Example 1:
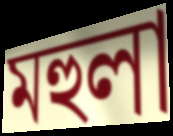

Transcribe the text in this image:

মহুলা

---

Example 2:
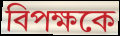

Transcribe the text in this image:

বিপক্ষকে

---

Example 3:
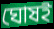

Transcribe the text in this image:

ঘোষই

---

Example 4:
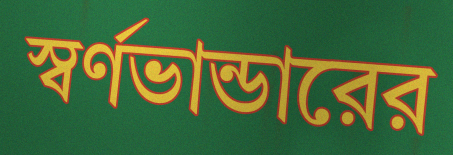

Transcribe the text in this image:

স্বর্ণভান্ডারের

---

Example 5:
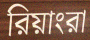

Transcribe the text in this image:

রিয়াংরা